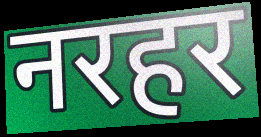
नरहर